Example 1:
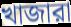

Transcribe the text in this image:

খাজারা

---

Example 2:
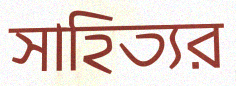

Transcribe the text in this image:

সাহিত্যর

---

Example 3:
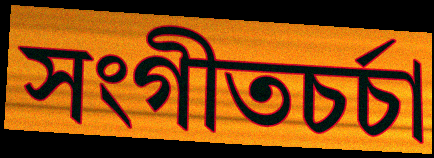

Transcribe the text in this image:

সংগীতচর্চা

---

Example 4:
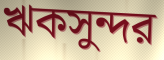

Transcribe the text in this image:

ঋকসুন্দর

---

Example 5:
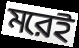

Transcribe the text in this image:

মরেই